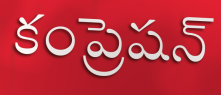
కంప్రెషన్